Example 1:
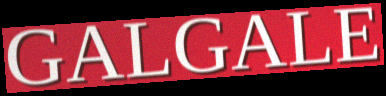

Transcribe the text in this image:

GALGALE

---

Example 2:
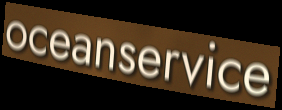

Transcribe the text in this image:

oceanservice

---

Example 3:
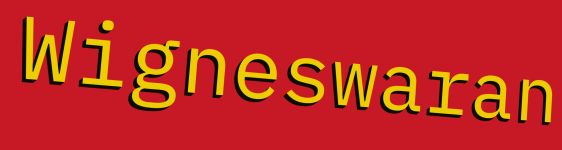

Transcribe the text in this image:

Wigneswaran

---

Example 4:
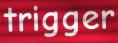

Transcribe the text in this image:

trigger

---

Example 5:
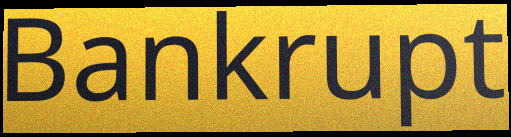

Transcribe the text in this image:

Bankrupt